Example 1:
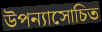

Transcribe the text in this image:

উপন্যাসোচিত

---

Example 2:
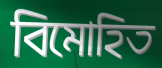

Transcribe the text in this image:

বিমোহিত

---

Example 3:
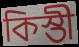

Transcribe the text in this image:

কিস্তী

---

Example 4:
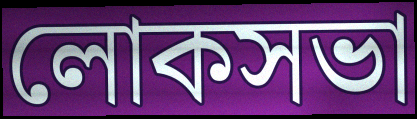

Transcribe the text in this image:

লোকসভা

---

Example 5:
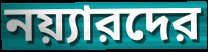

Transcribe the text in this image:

নয়্যারদের